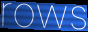
rows